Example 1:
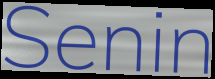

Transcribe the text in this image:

Senin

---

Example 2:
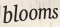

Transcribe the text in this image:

blooms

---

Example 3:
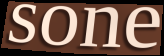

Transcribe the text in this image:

sone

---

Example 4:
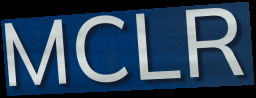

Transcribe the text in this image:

MCLR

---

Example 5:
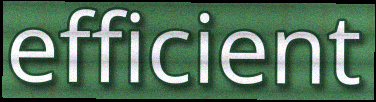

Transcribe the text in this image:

efficient